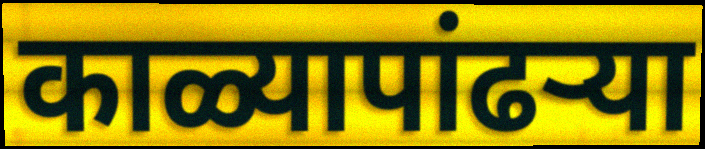
काळ्यापांढर्‍या